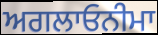
ਅਗਲਾਓਨੀਮਾ